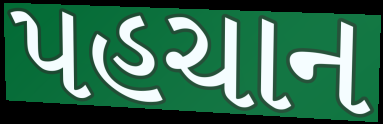
પહચાન